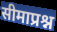
सीमाप्रश्न